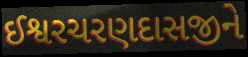
ઈશ્વરચરણદાસજીને